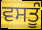
ਵਸਤੂੰ